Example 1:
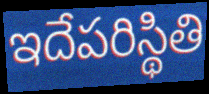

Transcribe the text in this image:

ఇదేపరిస్థితి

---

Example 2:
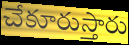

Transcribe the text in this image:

చేకూరుస్తారు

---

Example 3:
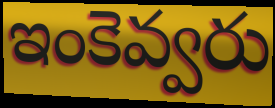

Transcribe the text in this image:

ఇంకెవ్వరు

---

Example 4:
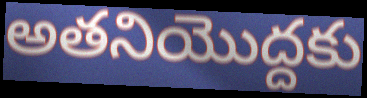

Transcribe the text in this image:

అతనియొద్దకు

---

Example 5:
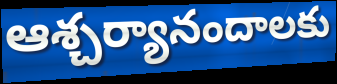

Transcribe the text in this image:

ఆశ్చర్యానందాలకు